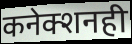
कनेक्शनही